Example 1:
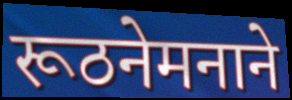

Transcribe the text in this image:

रूठनेमनाने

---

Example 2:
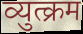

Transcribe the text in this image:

व्युत्क्रम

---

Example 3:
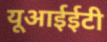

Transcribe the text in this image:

यूआईईटी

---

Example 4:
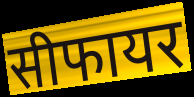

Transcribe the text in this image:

सीफायर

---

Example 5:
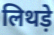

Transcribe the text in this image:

लिथड़े